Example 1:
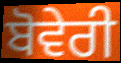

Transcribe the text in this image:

ਬੋਵੇਰੀ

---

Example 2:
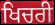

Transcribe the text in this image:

ਖਿਚਰੀ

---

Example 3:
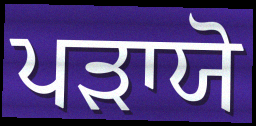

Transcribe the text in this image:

ਪੜਾਯੋ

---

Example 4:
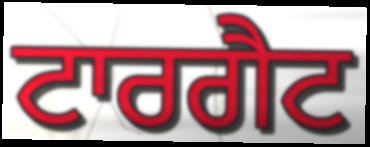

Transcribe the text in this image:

ਟਾਰਗੈਟ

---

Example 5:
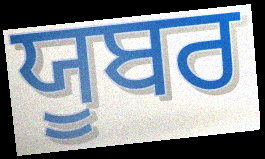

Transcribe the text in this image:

ਯੂਬਰ